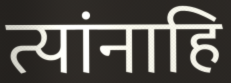
त्यांनाहि